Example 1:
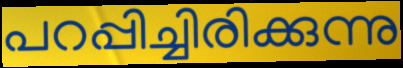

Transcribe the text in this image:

പറപ്പിച്ചിരിക്കുന്നു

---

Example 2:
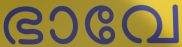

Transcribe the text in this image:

ഭാവേ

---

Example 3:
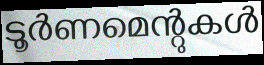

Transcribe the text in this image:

ടൂർണമെന്റുകൾ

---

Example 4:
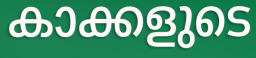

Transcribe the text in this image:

കാക്കളുടെ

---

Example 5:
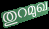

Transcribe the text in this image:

തുറമുഖ